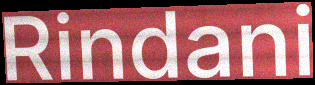
Rindani